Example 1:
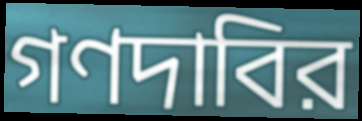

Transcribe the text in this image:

গণদাবির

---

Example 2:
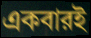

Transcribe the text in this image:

একবারই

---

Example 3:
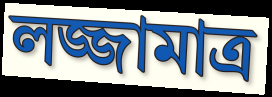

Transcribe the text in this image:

লজ্জামাত্র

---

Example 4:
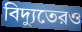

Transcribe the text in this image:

বিদ্যুতেরও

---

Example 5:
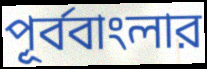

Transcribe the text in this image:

পূর্ববাংলার